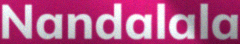
Nandalala